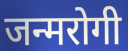
जन्मरोगी